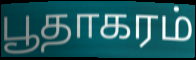
பூதாகரம்